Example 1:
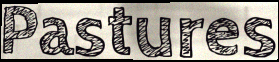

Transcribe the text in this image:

Pastures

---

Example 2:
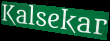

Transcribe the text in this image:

Kalsekar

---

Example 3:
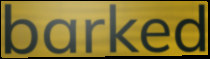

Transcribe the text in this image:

barked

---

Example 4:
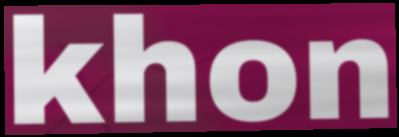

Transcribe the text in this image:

khon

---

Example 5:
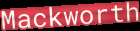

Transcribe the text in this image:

Mackworth